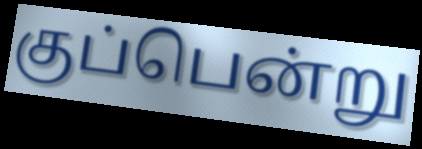
குப்பென்று